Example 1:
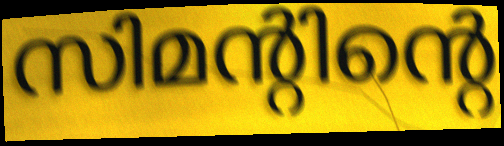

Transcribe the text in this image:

സിമന്റിന്റെ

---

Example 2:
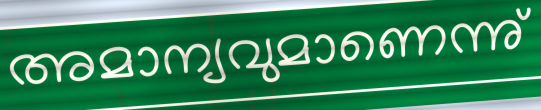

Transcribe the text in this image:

അമാന്യവുമാണെന്നു്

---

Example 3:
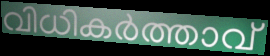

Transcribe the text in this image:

വിധികർത്താവ്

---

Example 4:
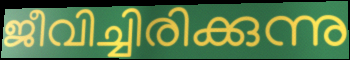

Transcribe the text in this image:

ജീവിച്ചിരിക്കുന്നു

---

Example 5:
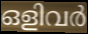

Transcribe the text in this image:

ഒളിവർ